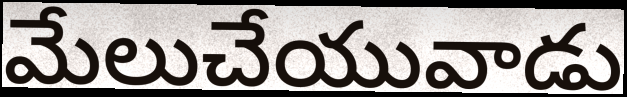
మేలుచేయువాడు